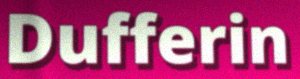
Dufferin